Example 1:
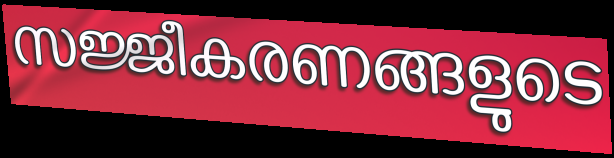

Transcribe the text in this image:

സജ്ജീകരണങ്ങളുടെ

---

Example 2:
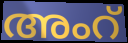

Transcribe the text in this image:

അംറ്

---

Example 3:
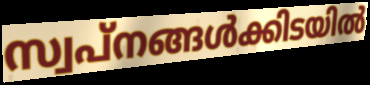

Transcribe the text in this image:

സ്വപ്നങ്ങൾക്കിടയിൽ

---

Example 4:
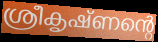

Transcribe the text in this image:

ശ്രീകൃഷ്‌ണന്റെ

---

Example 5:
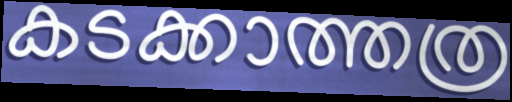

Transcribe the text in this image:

കടക്കാത്തത്ര